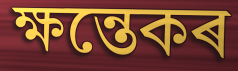
ক্ষন্তেকৰ